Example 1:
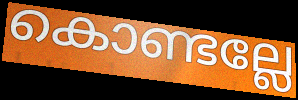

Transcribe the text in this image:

കൊണ്ടല്ലേ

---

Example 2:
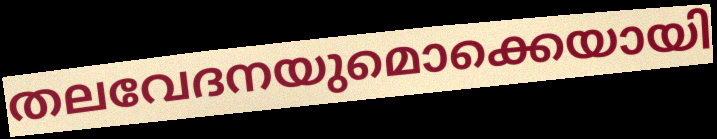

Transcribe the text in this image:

തലവേദനയുമൊക്കെയായി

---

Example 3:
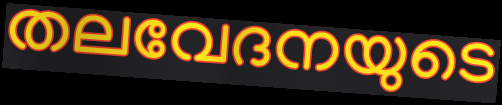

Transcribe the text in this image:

തലവേദനയുടെ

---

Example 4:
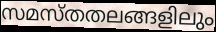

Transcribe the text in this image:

സമസ്തതലങ്ങളിലും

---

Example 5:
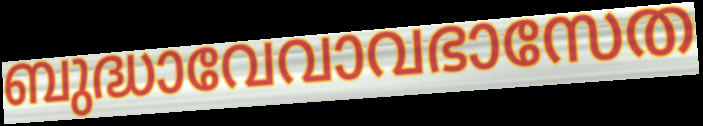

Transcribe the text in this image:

ബുദ്ധാവേവാവഭാസേത